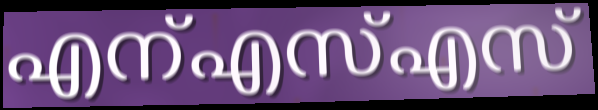
എന്എസ്എസ്